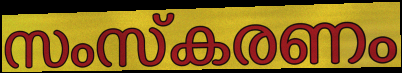
സംസ്‌കരണം